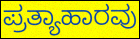
ಪ್ರತ್ಯಾಹಾರವು